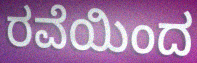
ರವೆಯಿಂದ